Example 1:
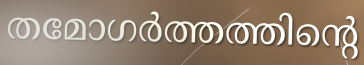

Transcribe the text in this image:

തമോഗർത്തത്തിന്റെ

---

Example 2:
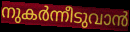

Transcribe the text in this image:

നുകർന്നീടുവാൻ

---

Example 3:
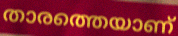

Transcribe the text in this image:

താരത്തെയാണ്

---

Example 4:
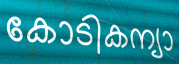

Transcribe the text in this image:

കോടികന്യാ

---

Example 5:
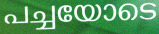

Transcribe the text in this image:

പച്ചയോടെ